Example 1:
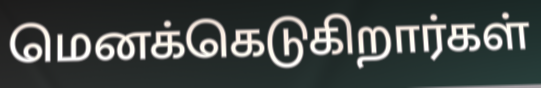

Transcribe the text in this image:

மெனக்கெடுகிறார்கள்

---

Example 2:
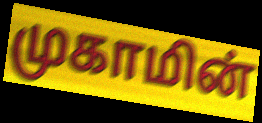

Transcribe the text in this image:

முகாமின்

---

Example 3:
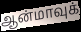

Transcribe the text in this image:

ஆன்மாவுக்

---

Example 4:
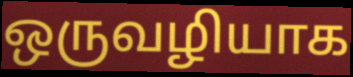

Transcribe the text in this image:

ஒருவழியாக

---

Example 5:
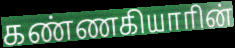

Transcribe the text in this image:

கண்ணகியாரின்